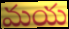
మయ